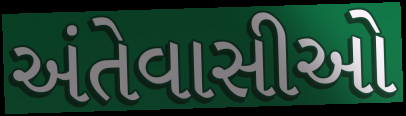
અંતેવાસીઓ